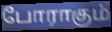
போராகும்